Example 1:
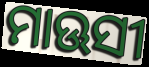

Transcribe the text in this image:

ମାଊସୀ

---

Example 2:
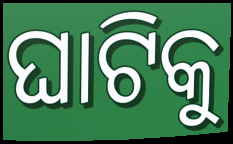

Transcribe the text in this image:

ଘାଟିକୁ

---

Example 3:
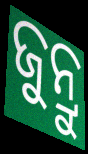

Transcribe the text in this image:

ଜୁନ୍ରୁ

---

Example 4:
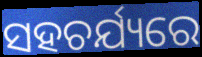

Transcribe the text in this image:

ସହଚର୍ଯ୍ୟରେ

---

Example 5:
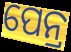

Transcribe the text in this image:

ପେନ୍ର